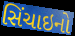
સિંચાઇનો